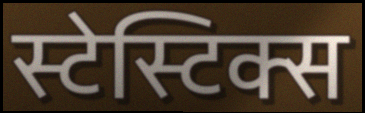
स्टेस्टिक्स